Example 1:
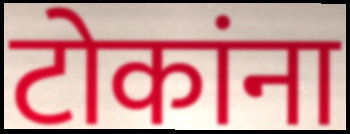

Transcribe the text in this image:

टोकांना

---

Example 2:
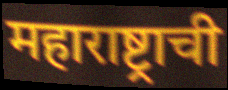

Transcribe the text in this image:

महाराष्ट्राची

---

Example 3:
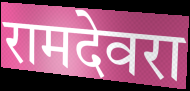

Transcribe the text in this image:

रामदेवरा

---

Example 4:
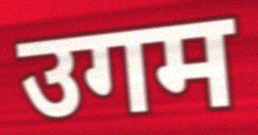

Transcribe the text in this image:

उगम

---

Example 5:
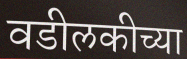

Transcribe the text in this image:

वडीलकीच्या